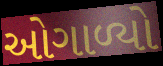
ઓગાળ્યો